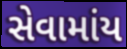
સેવામાંય